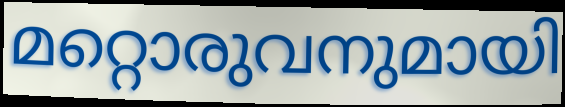
മറ്റൊരുവനുമായി